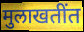
मुलाखतींत